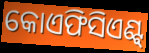
କୋଏଫିସିଏଣ୍ଟ୍